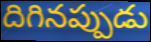
దిగినప్పుడు